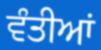
ਵੰਤੀਆਂ